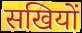
सखियों